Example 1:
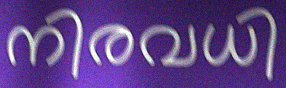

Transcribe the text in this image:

നിരവധി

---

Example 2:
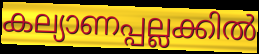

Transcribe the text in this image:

കല്യാണപ്പല്ലക്കിൽ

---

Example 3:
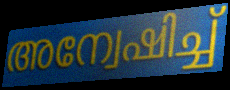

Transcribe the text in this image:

അന്വേഷിച്ച്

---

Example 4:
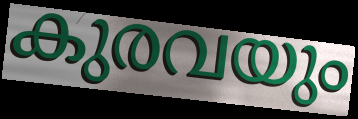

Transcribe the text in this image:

കുരവയും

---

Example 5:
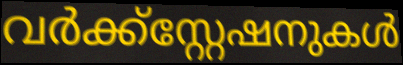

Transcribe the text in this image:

വർക്ക്സ്റ്റേഷനുകൾ